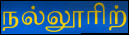
நல்லூரிற்